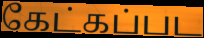
கேட்கப்பட